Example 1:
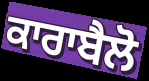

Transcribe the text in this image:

ਕਾਰਾਬੈਲੋ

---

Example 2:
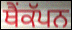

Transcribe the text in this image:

ਥੈਂਕੱਪਨ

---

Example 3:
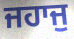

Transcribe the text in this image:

ਜਹਾਜੁ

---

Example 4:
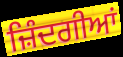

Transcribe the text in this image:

ਜ਼ਿੰਦਗੀਆਂ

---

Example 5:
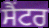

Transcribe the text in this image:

ਸੈਂਟਰ